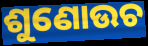
ଶୁଣୋଉଚ